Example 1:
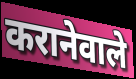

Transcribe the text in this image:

करानेवाले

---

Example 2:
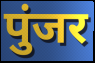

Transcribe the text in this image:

पुंजर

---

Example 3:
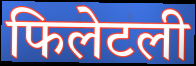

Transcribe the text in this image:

फिलेटली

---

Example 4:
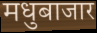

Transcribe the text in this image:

मधुबाजार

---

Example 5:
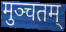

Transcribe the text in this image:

मुञ्चतम्